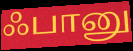
ஃபானு